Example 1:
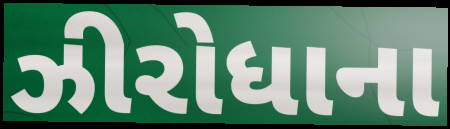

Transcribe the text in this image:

ઝીરોધાના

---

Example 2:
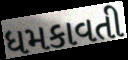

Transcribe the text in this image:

ધમકાવતી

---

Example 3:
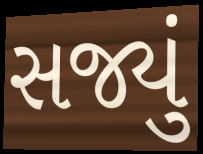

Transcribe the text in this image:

સજ્યું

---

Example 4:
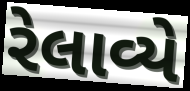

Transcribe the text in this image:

રેલાવ્યે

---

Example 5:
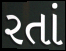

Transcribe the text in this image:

રતાં